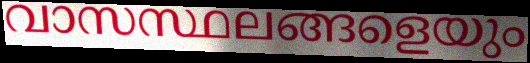
വാസസ്ഥലങ്ങളെയും